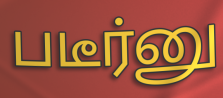
படீர்னு